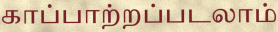
காப்பாற்றப்படலாம்